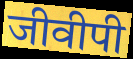
जीवीपी